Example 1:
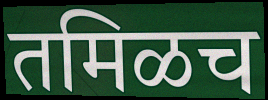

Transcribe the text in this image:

तमिळच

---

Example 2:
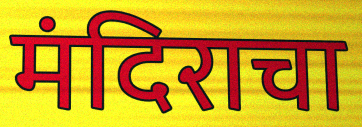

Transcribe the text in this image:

मंदिराचा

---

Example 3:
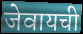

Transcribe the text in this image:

जेवायची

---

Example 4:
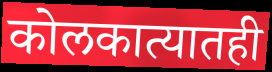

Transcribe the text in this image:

कोलकात्यातही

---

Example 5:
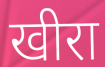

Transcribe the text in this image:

खीरा